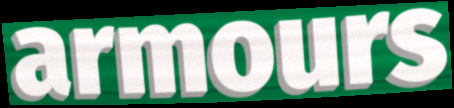
armours